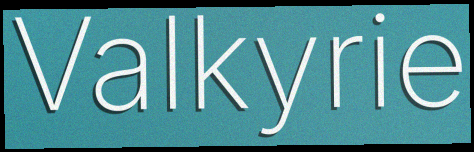
Valkyrie